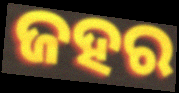
ଜହର